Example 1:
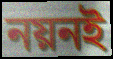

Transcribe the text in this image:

নয়নই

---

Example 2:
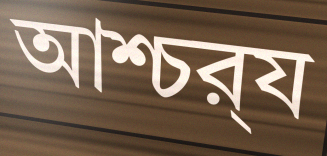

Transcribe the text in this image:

আশ্চর্‍য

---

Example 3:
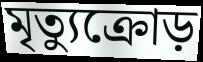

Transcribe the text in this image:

মৃত্যুক্রোড়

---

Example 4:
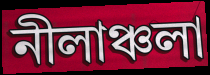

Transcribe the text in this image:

নীলাঞ্চলা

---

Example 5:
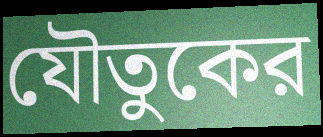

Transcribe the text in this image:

যৌতুকের